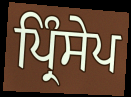
ਪ੍ਰਿੰਸੇਪ